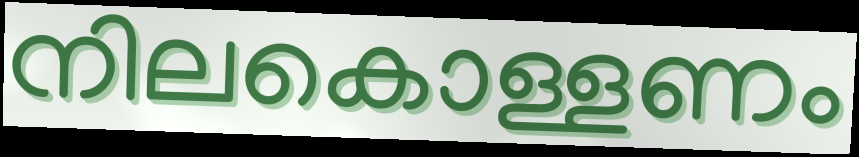
നിലകൊള്ളണം